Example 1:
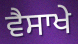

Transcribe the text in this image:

ਵੈਸਾਖੇ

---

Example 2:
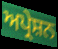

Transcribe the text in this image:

ਅਪ੍ਰੇਸ਼ਨ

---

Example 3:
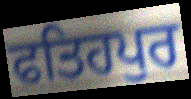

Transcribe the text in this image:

ਫਤਿਹਪੁਰ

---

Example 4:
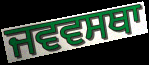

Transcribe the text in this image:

ਜਵਵਸਥਾ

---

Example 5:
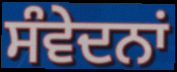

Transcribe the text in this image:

ਸੰਵੇਦਨਾਂ